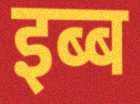
इब्ब